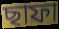
ছাফা